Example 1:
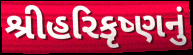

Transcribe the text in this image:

શ્રીહરિકૃષ્ણનું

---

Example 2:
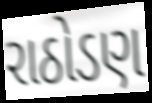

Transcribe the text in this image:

રાઠોડણ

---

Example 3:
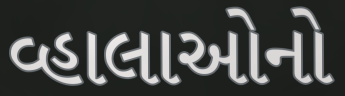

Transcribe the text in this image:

વ્હાલાઓનો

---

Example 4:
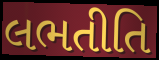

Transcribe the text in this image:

લભતીતિ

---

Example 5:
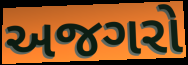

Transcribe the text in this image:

અજગરો